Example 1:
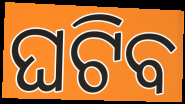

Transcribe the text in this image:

ଘଟିବ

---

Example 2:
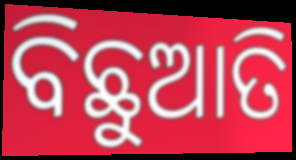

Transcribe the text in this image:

ବିଛୁଆତି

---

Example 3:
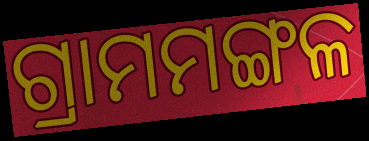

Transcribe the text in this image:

ଗ୍ରାମମଙ୍ଗଳ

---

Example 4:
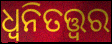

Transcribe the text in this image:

ଧ୍ଵନିତତ୍ତ୍ଵର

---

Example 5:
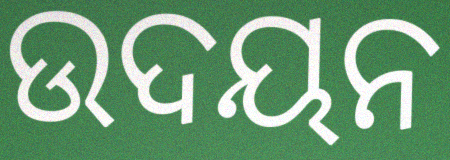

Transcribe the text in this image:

ଉଦୟନ